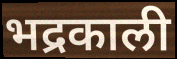
भद्रकाली